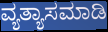
ವ್ಯತ್ಯಾಸಮಾಡಿ